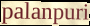
palanpuri